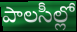
పాలసీల్లో